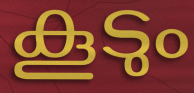
കൂടും